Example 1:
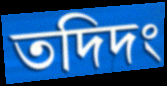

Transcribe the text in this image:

তদিদং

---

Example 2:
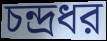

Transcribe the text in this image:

চন্দ্রধর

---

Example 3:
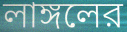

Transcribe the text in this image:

লাঙ্গলের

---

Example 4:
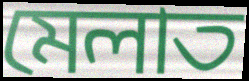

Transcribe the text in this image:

মেলাত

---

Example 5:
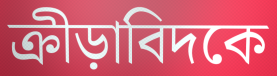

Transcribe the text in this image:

ক্রীড়াবিদকে